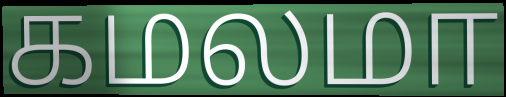
கமலமா